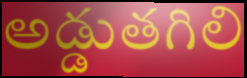
అడ్డుతగిలి